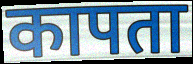
कापता